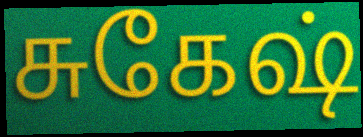
சுகேஷ்